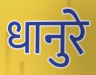
धानुरे